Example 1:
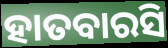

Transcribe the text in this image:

ହାତବାରସି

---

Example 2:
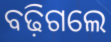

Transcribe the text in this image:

ବଢ଼ିଗଲେ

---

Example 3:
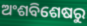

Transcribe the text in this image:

ଅଂଶବିଶେଷରୁ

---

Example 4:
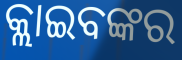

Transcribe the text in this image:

କ୍ଲାଇବଙ୍କର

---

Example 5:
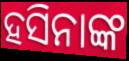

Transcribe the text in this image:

ହସିନାଙ୍କ